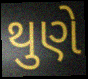
થુણે